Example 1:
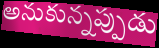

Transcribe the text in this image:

అనుకున్నప్పుడు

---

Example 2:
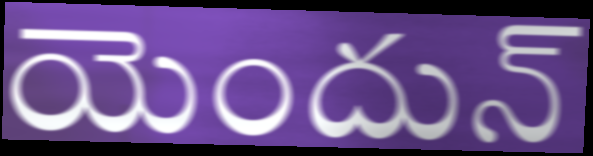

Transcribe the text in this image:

యెందున్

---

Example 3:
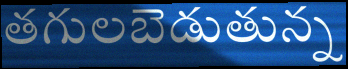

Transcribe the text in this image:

తగులబెడుతున్న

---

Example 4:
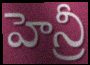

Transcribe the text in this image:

హెన్రీ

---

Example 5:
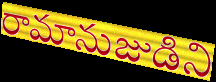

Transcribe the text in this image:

రామానుజుడిని